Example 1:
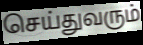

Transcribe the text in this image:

செய்துவரும்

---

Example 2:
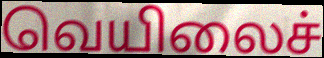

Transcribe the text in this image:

வெயிலைச்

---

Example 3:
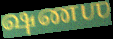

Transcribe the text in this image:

ஷணஶ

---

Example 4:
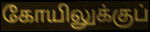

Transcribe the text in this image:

கோயிலுக்குப்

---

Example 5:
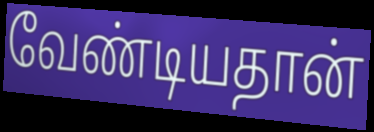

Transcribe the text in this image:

வேண்டியதான்